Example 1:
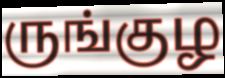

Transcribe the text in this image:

ருங்குழ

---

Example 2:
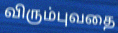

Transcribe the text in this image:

விரும்புவதை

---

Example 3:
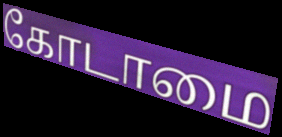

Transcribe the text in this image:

கோடாமை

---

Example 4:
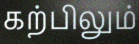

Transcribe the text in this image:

கற்பிலும்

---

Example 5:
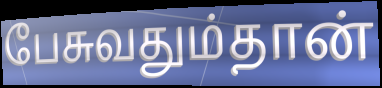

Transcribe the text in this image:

பேசுவதும்தான்